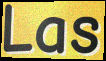
Las